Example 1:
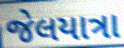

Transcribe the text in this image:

જેલયાત્રા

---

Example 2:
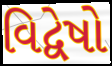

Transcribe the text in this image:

વિદ્વેષો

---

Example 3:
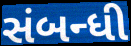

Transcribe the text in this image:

સંબન્ધી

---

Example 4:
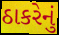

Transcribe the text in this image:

ઠાકરેનું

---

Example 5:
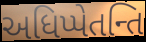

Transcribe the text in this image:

અધિપ્પેતન્તિ